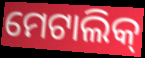
ମେଟାଲିକ୍